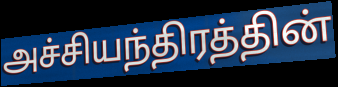
அச்சியந்திரத்தின்